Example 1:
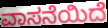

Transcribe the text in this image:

ವಾಸನೆಯಿದೆ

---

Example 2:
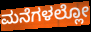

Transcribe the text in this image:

ಮನೆಗಳಲ್ಲೋ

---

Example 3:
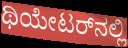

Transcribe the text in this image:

ಥಿಯೇಟರ್‌ನಲ್ಲಿ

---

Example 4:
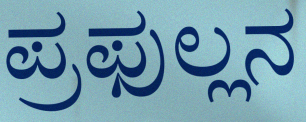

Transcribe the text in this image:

ಪ್ರಫುಲ್ಲನ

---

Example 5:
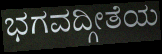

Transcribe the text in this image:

ಭಗವದ್ಗೀತೆಯ